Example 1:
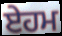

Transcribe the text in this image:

ਏਹਮ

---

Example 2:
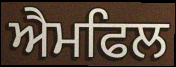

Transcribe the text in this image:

ਐਮਫਿਲ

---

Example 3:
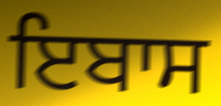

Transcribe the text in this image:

ਇਬਾਸ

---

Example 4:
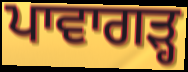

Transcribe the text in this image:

ਪਾਵਾਗੜ੍ਹ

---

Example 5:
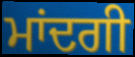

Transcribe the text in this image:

ਮਾਂਦਗੀ